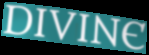
DIVINE